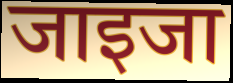
जाइजा